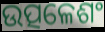
ଉତ୍ପଳେଶଂ